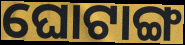
ଘୋଟାଙ୍ଗ